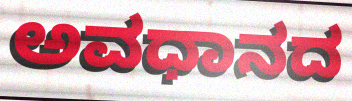
ಅವಧಾನದ